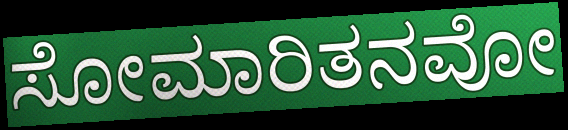
ಸೋಮಾರಿತನವೋ